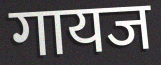
गायज